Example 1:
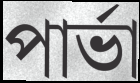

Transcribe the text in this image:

পার্ভা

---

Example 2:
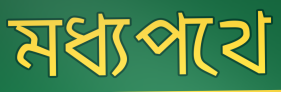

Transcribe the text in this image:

মধ্যপথে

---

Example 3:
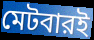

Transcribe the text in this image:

মেটবারই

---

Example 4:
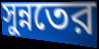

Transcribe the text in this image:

সুন্নতের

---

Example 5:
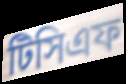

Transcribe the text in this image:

টিসিএফ